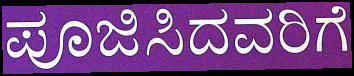
ಪೂಜಿಸಿದವರಿಗೆ